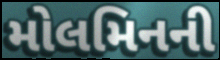
મોલમિનની